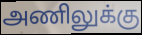
அணிலுக்கு